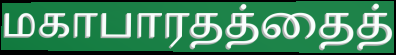
மகாபாரதத்தைத்